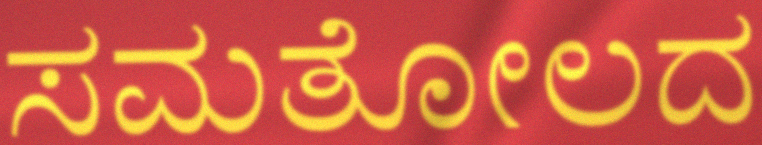
ಸಮತೋಲದ